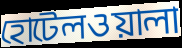
হোটেলওয়ালা